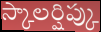
స్కాలర్షిప్కు